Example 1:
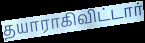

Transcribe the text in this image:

தயாராகிவிட்டார்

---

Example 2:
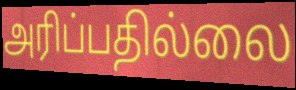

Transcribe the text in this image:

அரிப்பதில்லை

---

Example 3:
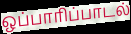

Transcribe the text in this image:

ஒப்பாரிப்பாடல்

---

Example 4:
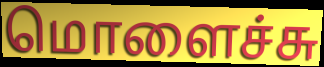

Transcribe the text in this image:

மொளைச்சு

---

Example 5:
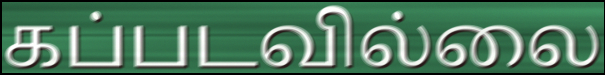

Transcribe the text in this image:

கப்படவில்லை